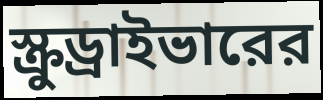
স্ক্রুড্রাইভারের